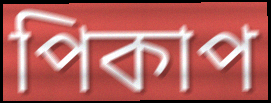
পিকাপ